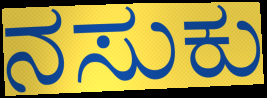
ನಸುಕು